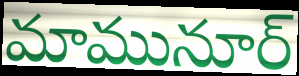
మామునూర్